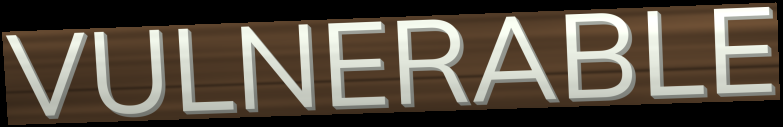
VULNERABLE